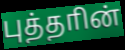
புத்தரின்